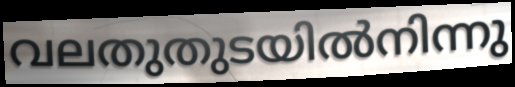
വലതുതുടയിൽനിന്നു